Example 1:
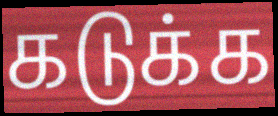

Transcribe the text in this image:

கடுக்க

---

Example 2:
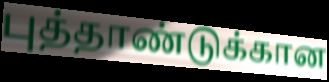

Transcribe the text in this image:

புத்தாண்டுக்கான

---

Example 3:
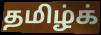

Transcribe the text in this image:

தமிழ்க்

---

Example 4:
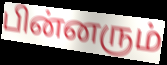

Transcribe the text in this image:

பின்னரும்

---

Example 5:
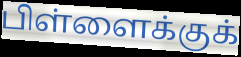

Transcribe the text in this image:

பிள்ளைக்குக்